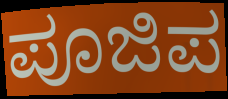
ಪೂಜಿಪ